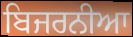
ਬਿਜਰਨੀਆ